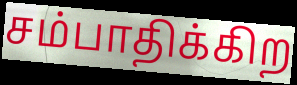
சம்பாதிக்கிற